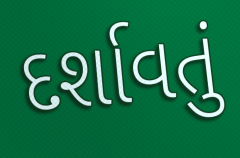
દર્શાવતું